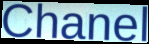
Chanel